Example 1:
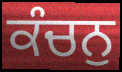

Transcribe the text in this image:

ਕੰਚਨੁ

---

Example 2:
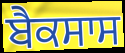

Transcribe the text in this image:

ਬੈਕਸਾਸ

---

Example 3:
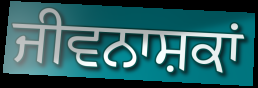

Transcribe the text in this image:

ਜੀਵਨਾਸ਼ਕਾਂ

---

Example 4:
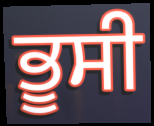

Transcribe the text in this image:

ਭੂਸੀ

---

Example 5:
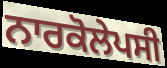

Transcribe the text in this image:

ਨਾਰਕੋਲੇਪਸੀ